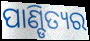
ପାଣ୍ଡିତ୍ୟର